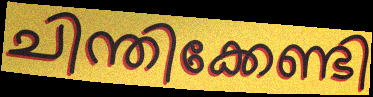
ചിന്തിക്കേണ്ടി